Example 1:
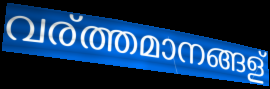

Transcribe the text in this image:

വര്ത്തമാനങ്ങള്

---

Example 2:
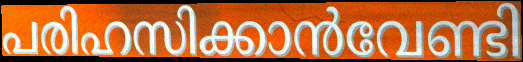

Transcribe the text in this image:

പരിഹസിക്കാൻവേണ്ടി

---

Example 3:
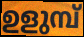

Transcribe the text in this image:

ഉളുമ്പ്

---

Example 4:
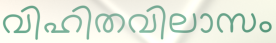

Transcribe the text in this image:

വിഹിതവിലാസം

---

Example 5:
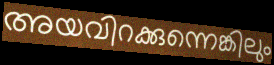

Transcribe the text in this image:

അയവിറക്കുന്നെങ്കിലും